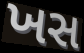
ખસ